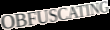
OBFUSCATING